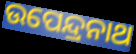
ଉପେନ୍ଦ୍ରନାଥ